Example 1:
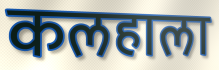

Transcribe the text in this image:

कलहाला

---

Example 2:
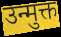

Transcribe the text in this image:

उन्मुक्त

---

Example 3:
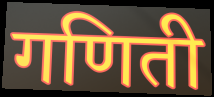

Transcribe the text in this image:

गणिती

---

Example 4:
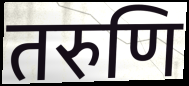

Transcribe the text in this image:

तरुणि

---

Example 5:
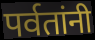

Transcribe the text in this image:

पर्वतांनी